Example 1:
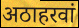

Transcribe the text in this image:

अठाहरवां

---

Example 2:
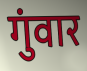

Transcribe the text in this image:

गुंवार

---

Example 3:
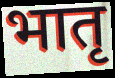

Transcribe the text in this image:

भातृ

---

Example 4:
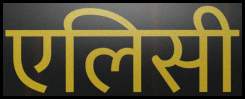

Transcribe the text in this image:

एलिसी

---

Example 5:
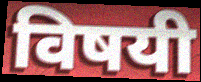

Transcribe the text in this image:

विषयी